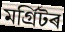
মৰ্গ্ৰিটৰ